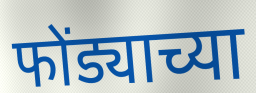
फोंड्याच्या